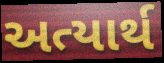
અત્યાર્થ